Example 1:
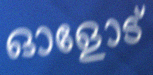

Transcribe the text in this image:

ഓളോട്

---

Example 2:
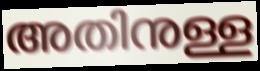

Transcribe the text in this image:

അതിനുള്ള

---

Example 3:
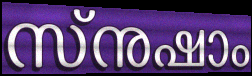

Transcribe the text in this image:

സ്നുഷാം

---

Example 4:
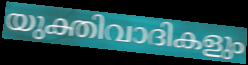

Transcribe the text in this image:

യുക്തിവാദികളും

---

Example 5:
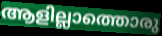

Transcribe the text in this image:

ആളില്ലാത്തൊരു